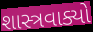
શાસ્ત્રવાક્યો